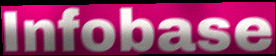
Infobase